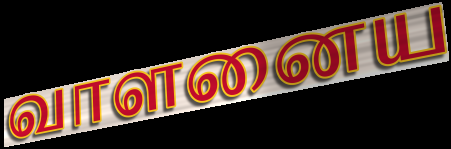
வாளனைய